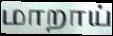
மாறாய்